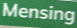
Mensing